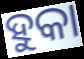
ହୁକା